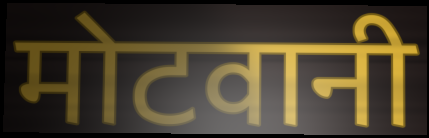
मोटवानी